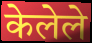
केलेले